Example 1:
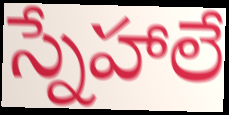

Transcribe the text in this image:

స్నేహాలే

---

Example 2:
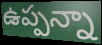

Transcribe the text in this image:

ఉప్పన్నా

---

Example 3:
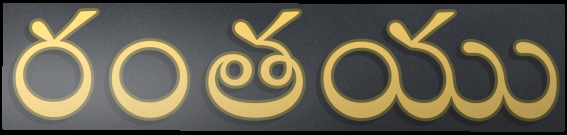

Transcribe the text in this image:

రంతయు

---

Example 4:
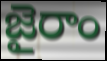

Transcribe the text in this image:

జైరాం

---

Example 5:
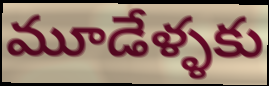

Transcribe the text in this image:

మూడేళ్ళకు